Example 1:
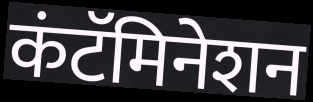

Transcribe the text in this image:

कंटॅमिनेशन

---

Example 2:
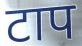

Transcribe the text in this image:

टाप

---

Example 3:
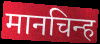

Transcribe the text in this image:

मानचिन्ह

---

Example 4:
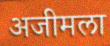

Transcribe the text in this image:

अजीमला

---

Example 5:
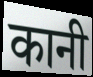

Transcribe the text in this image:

कानी